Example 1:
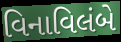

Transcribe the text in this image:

વિનાવિલંબે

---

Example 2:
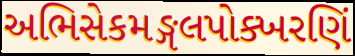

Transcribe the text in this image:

અભિસેકમઙ્ગલપોક્ખરણિં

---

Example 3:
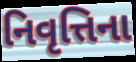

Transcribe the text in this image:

નિવૃત્તિના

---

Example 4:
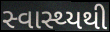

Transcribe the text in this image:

સ્વાસ્થ્યથી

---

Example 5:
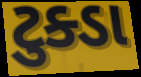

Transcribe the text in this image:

ટુક્ડા